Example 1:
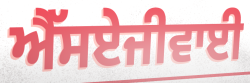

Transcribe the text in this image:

ਐੱਸਏਜੀਵਾਈ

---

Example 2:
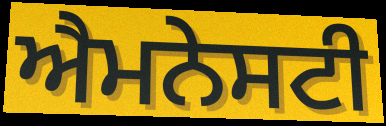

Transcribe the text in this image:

ਐਮਨੇਸਟੀ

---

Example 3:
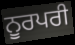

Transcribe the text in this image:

ਨੂਰਪਰੀ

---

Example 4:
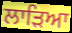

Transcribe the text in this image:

ਲਾੜਿਆ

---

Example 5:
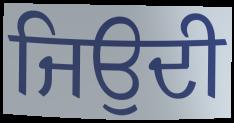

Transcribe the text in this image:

ਜਿਉਦੀ